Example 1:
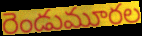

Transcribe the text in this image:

రెండుమూరల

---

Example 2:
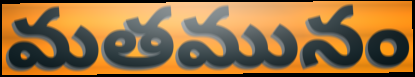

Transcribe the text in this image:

మతమునం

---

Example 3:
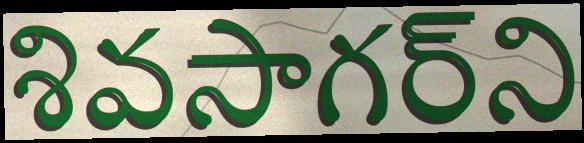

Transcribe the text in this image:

శివసాగర్‌ని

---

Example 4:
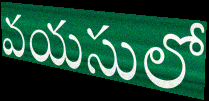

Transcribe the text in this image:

వయసులో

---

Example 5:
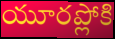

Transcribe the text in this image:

యూరప్లోకి